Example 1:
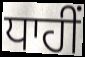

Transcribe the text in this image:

ਧਾਹੀਂ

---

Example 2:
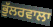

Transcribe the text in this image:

ਭੁੱਲਰਵਾਲਾ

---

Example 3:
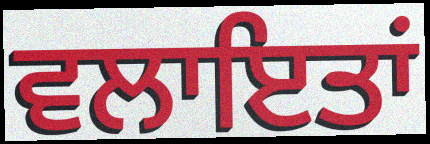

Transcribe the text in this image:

ਵਲਾਇਤਾਂ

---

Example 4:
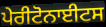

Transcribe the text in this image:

ਪੇਰੀਟੋਨਾਈਟਸ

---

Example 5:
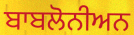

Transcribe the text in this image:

ਬਾਬਲੋਨੀਅਨ